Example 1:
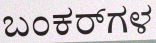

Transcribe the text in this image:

ಬಂಕರ್‌ಗಳ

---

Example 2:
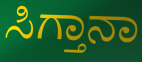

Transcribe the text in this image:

ಸಿಗ್ತಾನಾ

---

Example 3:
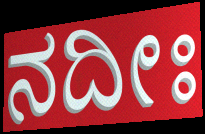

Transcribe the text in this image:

ನದೀಃ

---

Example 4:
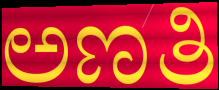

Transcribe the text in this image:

ಅಣತಿ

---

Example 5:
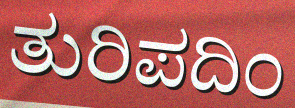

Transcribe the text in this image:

ತುರಿಪದಿಂ